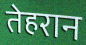
तेहरान